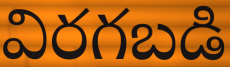
విరగబడి